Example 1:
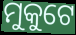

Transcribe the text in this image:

ମୁକୁଟେ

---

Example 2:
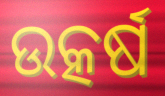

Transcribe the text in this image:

ଉତ୍କର୍ଷ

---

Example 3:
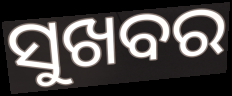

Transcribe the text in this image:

ସୁଖବର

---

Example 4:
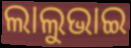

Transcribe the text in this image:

ଲାଲୁଭାଇ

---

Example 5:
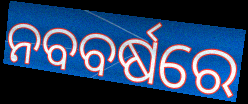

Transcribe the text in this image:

ନବବର୍ଷରେ